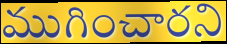
ముగించారని